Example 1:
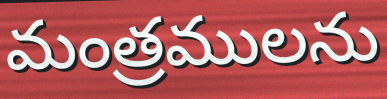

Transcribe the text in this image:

మంత్రములను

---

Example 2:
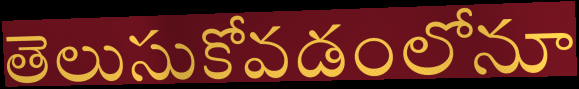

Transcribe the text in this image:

తెలుసుకోవడంలోనూ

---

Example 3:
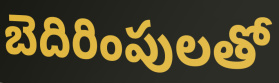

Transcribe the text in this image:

బెదిరింపులతో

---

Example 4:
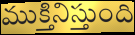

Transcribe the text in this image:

ముక్తినిస్తుంది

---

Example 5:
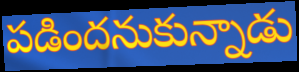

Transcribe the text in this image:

పడిందనుకున్నాడు